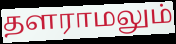
தளராமலும்